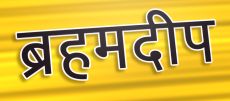
ब्रहमदीप